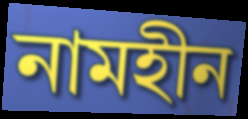
নামহীন